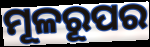
ମୂଳରୂପର